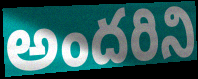
అందరిని